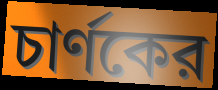
চার্ণকের